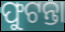
ଫୁଟନ୍ତା